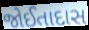
જોઈતાદાસ